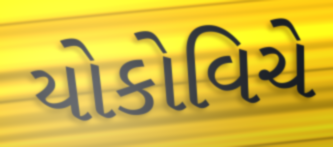
યોકોવિચે